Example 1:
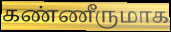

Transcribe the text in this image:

கண்ணீருமாக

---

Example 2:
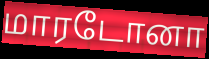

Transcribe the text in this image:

மாரடோனா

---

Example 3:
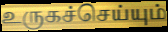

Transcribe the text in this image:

உருகச்செய்யும்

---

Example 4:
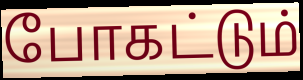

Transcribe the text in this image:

போகட்டும்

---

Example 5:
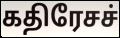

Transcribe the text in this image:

கதிரேசச்